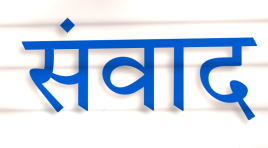
संवाद